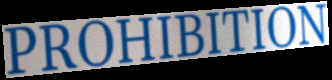
PROHIBITION